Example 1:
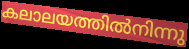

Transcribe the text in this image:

കലാലയത്തിൽനിന്നു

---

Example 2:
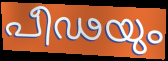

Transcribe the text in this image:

പീഢയും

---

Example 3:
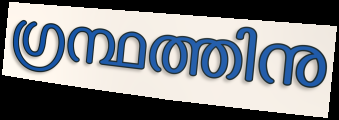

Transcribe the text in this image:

ഗ്രന്ഥത്തിനു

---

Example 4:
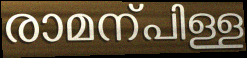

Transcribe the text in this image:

രാമന്പിള്ള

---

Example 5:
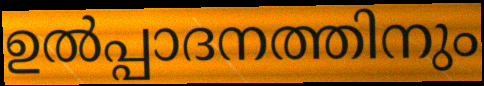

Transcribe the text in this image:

ഉൽപ്പാദനത്തിനും